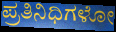
ಪ್ರತಿನಿಧಿಗಳೋ